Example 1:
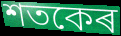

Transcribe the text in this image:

শতকেৰ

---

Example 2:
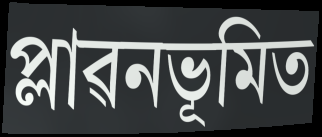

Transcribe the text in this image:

প্লাৱনভূমিত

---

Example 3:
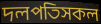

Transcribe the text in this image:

দলপতিসকল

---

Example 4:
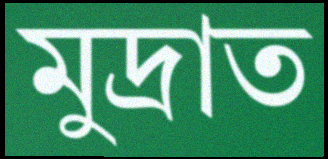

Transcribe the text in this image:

মুদ্ৰাত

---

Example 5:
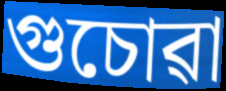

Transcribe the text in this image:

গুচোৱা